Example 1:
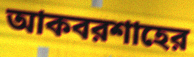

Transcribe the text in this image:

আকবরশাহের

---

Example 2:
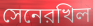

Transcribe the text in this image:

সেনেরখিল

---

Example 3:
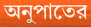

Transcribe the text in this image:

অনুপাতের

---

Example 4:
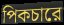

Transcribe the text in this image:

পিকচারে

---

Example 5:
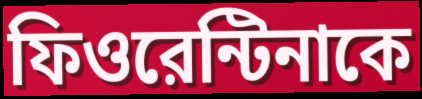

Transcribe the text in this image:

ফিওরেন্টিনাকে